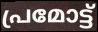
പ്രമോട്ട്